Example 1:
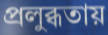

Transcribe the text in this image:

প্রলুব্ধতায়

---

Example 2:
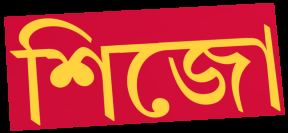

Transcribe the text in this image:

শিজো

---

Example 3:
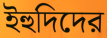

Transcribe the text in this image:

ইহুদিদের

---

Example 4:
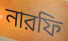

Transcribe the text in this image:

নারফি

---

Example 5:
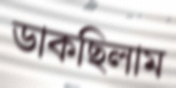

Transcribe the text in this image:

ডাকছিলাম